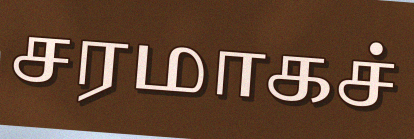
சரமாகச்